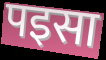
पइसा